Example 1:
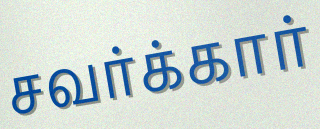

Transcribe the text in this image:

சவர்க்கார்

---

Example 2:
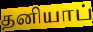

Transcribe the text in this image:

தனியாப்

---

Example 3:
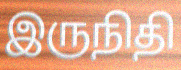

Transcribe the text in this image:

இருநிதி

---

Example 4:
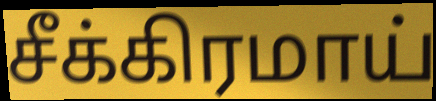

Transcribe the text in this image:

சீக்கிரமாய்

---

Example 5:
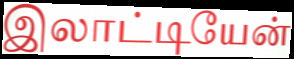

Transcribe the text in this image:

இலாட்டியேன்